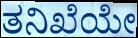
ತನಿಖೆಯೇ